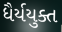
ધૈર્યયુક્ત